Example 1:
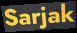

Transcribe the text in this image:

Sarjak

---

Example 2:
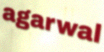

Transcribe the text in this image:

agarwal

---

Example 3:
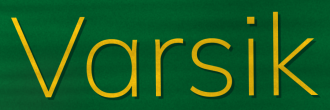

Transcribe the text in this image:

Varsik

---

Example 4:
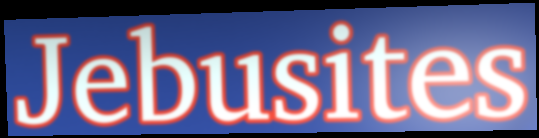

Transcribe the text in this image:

Jebusites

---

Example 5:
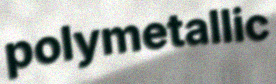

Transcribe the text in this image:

polymetallic